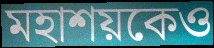
মহাশয়কেও